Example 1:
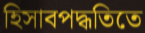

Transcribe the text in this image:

হিসাবপদ্ধতিতে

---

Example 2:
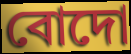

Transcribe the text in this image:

বোদো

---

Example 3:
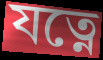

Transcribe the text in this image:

যত্নে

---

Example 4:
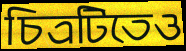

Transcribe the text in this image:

চিত্রটিতেও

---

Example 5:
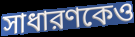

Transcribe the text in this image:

সাধারণকেও